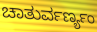
ಚಾತುರ್ವರ್ಣ್ಯಂ